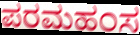
ಪರಮಹಂಸ